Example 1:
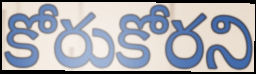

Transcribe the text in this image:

కోరుకోరని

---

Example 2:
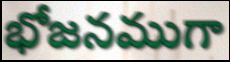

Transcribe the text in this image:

భోజనముగా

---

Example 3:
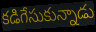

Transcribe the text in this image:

కడిగేసుకున్నాడు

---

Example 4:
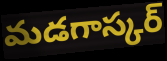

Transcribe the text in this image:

మడగాస్కర్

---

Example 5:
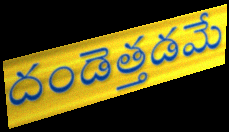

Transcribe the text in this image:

దండెత్తడమే